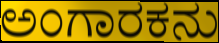
ಅಂಗಾರಕನು